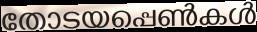
തോടയപ്പെൺകൾ